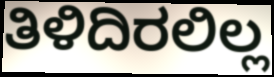
ತಿಳಿದಿರಲಿಲ್ಲ